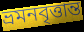
ভ্রমনবৃত্তান্ত